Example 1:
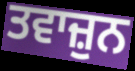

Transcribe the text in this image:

ਤਵਾਜ਼ੁਨ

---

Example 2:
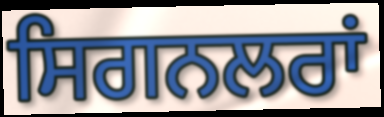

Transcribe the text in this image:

ਸਿਗਨਲਰਾਂ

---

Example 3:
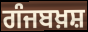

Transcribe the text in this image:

ਗੰਜਬਖ਼ਸ਼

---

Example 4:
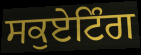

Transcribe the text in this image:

ਸਕੁਏਟਿੰਗ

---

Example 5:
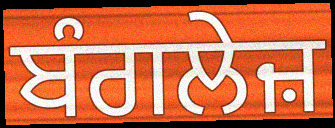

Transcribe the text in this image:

ਬੰਗਲੇਜ਼